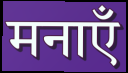
मनाएँ